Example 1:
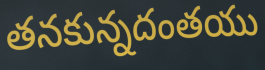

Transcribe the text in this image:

తనకున్నదంతయు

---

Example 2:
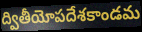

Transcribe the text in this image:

ద్వితీయోపదేశకాండమ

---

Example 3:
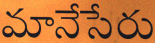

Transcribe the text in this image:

మానేసేరు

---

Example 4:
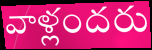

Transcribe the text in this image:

వాళ్లందరు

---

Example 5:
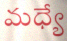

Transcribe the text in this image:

మధ్యే